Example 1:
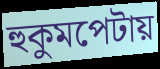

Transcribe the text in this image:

হুকুমপেটায়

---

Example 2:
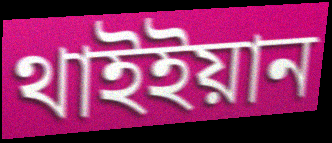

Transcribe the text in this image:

থাইইয়ান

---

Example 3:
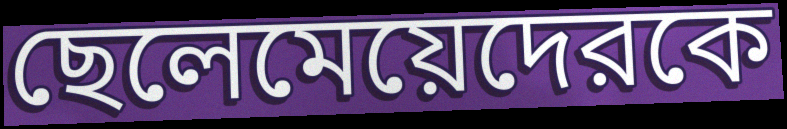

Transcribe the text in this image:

ছেলেমেয়েদেরকে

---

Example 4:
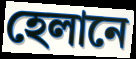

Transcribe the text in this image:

হেলানে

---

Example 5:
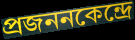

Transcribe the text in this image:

প্রজননকেন্দ্রে